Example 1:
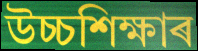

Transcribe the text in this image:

উচ্চশিক্ষাৰ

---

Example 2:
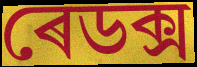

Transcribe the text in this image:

ৰেডক্স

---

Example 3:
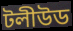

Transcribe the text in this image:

টলীউড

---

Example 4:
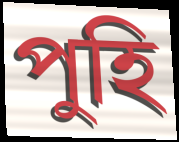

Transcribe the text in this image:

পুহি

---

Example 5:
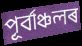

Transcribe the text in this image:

পূৰ্বাঞ্চলৰ